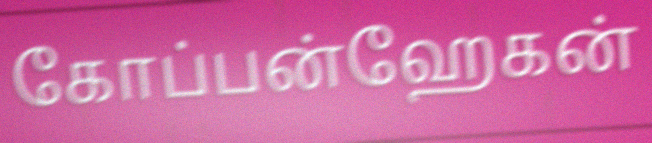
கோப்பன்ஹேகன்